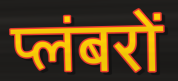
प्लंबरों